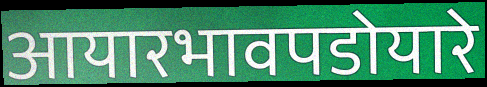
आयारभावपडोयारे